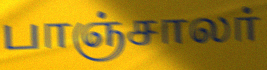
பாஞ்சாலர்